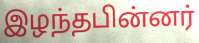
இழந்தபின்னர்